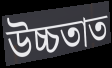
উচ্চতাত